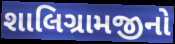
શાલિગ્રામજીનો